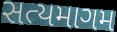
સત્યમાગમ